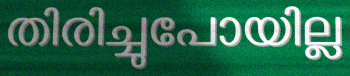
തിരിച്ചുപോയില്ല